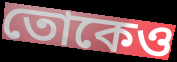
তোকেও